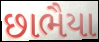
છાભૈયા